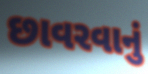
છાવરવાનું